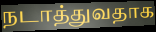
நடாத்துவதாக